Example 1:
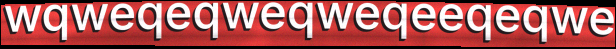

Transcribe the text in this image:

wqweqeqweqweqeeqeqwe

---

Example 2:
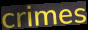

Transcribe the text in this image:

crimes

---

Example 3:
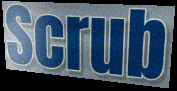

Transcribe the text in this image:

Scrub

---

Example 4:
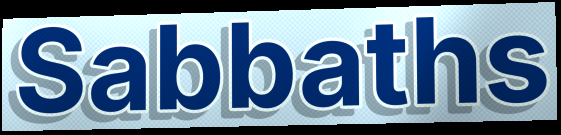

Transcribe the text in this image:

Sabbaths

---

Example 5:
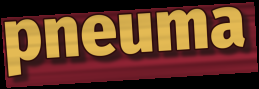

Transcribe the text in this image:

pneuma